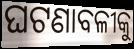
ଘଟଣାବଳୀକୁ